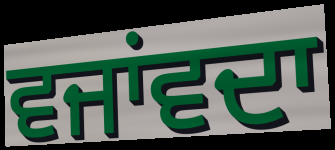
ਵਜਾਂਵਦਾ